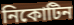
নিকোটিন